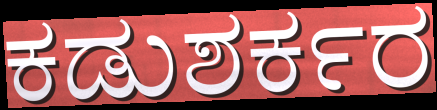
ಕಡುಶರ್ಕರ